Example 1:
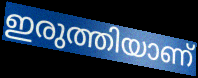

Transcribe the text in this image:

ഇരുത്തിയാണ്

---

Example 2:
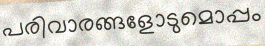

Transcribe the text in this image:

പരിവാരങ്ങളോടുമൊപ്പം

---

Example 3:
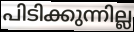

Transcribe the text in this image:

പിടിക്കുന്നില്ല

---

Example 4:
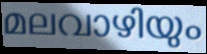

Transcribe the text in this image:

മലവാഴിയും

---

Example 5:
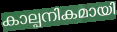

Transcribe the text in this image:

കാല്പനികമായി